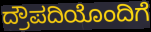
ದ್ರೌಪದಿಯೊಂದಿಗೆ